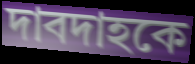
দাবদাহকে